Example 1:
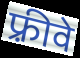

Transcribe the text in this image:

फ़्रीवे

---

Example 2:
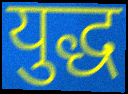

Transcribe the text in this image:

युद्ध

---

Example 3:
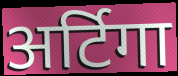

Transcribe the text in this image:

अर्टिगा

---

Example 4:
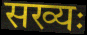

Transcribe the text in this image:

सख्यः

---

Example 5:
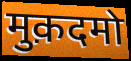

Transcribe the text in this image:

मुक़दमो